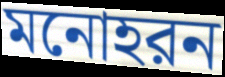
মনোহরন